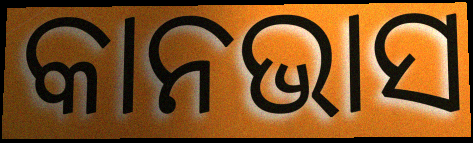
କାନଭାସ